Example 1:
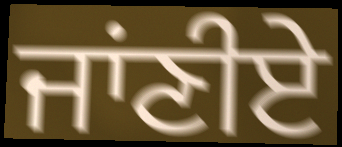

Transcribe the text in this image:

ਜਾਂਣੀਏ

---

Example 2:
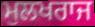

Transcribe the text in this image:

ਮੁਲਖਰਾਜ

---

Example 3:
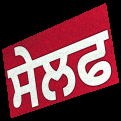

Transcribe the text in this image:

ਸੇਲਫ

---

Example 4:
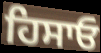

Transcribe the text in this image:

ਹਿਸਾਓ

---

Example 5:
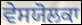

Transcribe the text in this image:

ਵੇਸਯੋਲਕਾ